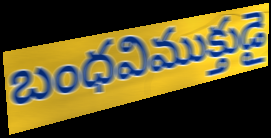
బంధవిముక్తుడై